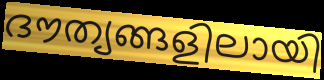
ദൗത്യങ്ങളിലായി